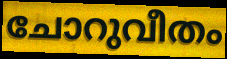
ചോറുവീതം